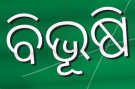
ବିଭୂଷି